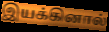
இயக்கினால்